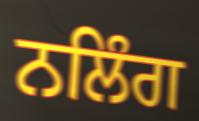
ਨਲਿੰਗ